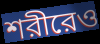
শরীরেও